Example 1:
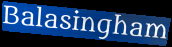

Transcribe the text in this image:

Balasingham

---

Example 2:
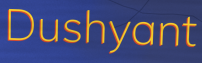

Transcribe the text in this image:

Dushyant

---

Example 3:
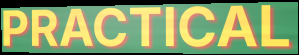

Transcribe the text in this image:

PRACTICAL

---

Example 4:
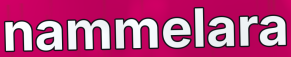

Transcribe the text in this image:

nammelara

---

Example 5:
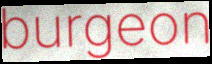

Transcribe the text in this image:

burgeon